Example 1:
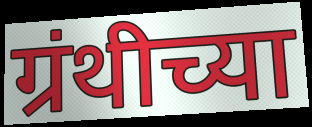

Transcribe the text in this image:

ग्रंथीच्या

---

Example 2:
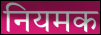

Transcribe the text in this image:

नियमक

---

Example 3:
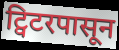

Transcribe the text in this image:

ट्विटरपासून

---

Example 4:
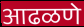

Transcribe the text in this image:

आढळणे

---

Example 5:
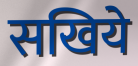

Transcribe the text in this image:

सखिये